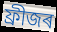
ফ্ৰীজৰ